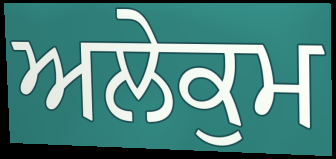
ਅਲੇਕੁਮ